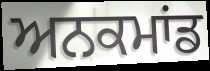
ਅਨਕਮਾਂਡ